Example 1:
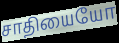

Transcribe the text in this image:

சாதியையோ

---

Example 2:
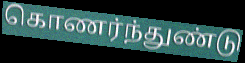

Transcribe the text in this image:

கொணர்ந்துண்டு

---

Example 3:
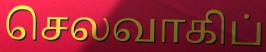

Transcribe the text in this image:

செலவாகிப்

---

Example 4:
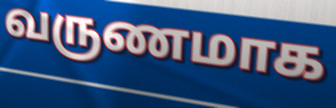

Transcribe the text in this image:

வருணமாக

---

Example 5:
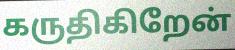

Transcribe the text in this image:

கருதிகிறேன்